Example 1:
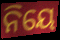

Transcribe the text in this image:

ନିୟେ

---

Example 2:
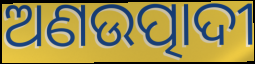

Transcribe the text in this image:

ଅଣଉତ୍ପାଦୀ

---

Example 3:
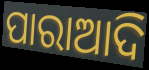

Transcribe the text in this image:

ପାରାଆଦି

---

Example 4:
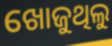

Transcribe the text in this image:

ଖୋଜୁଥିଲୁ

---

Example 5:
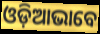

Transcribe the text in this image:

ଓଡ଼ିଆଭାବେ